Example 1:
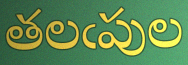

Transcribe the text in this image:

తలఁపుల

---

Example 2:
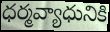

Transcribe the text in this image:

ధర్మవ్యాధునికి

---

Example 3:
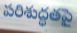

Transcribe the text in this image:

పరిశుద్ధతపై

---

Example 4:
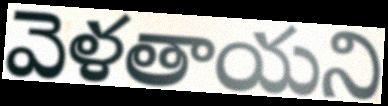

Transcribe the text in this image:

వెళతాయని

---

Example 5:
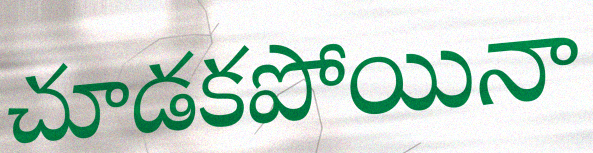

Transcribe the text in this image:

చూడకపోయినా